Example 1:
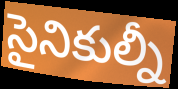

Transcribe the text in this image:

సైనికుల్నీ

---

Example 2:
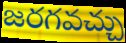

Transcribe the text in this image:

జరగవచ్చు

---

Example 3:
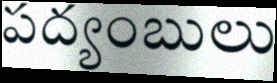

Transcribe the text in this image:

పద్యంబులు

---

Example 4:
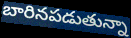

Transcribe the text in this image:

బారినపడుతున్నా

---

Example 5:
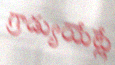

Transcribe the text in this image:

గ్రాడ్యుయేట్లే